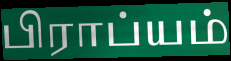
பிராப்யம்